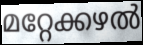
മറ്റേക്കഴൽ